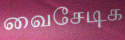
வைசேடிக